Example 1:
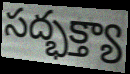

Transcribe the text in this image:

సద్భక్త్యా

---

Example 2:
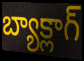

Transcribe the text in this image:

బ్యాక్లాగ్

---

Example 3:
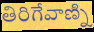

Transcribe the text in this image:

తిరిగేవాణ్ని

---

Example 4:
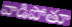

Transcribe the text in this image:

వాడిపోతూ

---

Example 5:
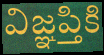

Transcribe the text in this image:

విజ్ఞప్తికి